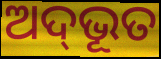
ଅଦ୍‍ଭୂତ